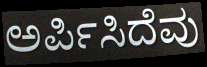
ಅರ್ಪಿಸಿದೆವು